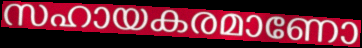
സഹായകരമാണോ